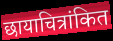
छायाचित्रांकित